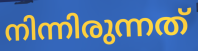
നിന്നിരുന്നത്